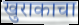
खुराकाचा